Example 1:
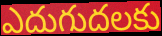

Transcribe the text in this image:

ఎదుగుదలకు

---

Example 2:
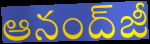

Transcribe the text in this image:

ఆనంద్‌జీ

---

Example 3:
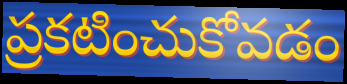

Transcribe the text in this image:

ప్రకటించుకోవడం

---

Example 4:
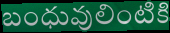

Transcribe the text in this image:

బంధువులింటికి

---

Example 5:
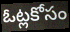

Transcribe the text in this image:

ఓట్లకోసం